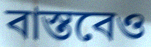
বাস্তবেও